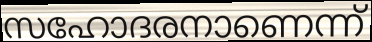
സഹോദരനാണെന്ന്